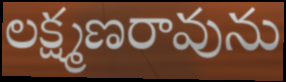
లక్ష్మణరావును